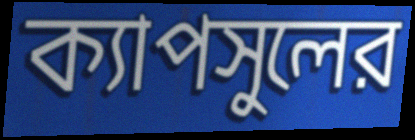
ক্যাপসুলের